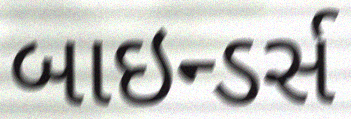
બાઇન્ડર્સ